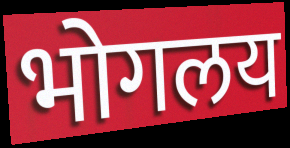
भोगलय